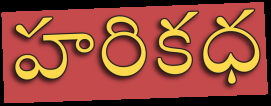
హరికధ